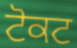
ਟੋਕਟ